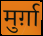
मुर्ग़ा